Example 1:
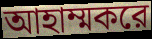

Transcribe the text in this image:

আহাম্মকরে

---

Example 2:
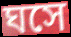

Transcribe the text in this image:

ঘসে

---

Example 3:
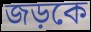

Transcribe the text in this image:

জড়কে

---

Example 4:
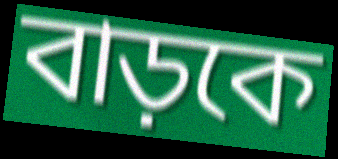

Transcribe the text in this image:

বাড়কে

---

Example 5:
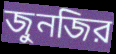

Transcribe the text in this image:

জুনজির